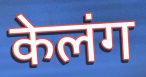
केलंग